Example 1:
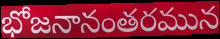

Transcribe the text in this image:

భోజనానంతరమున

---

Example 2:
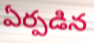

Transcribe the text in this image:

ఏర్పడిన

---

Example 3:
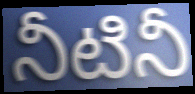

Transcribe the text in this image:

నీటినీ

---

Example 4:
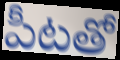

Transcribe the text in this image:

పీటతో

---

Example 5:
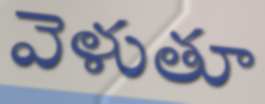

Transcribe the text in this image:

వెళుతూ